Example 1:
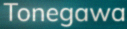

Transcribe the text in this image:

Tonegawa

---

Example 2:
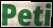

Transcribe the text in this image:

Peti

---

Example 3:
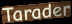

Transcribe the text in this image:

Tarader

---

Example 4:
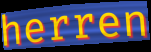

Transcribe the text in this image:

herren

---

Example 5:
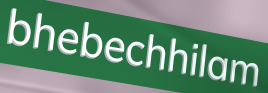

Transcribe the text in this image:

bhebechhilam